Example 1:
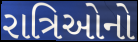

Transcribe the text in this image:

રાત્રિઓનો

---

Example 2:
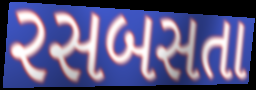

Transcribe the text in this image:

રસબસતા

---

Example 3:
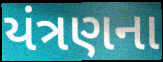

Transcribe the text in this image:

યંત્રણના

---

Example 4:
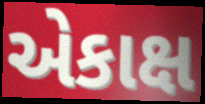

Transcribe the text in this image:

એકાક્ષ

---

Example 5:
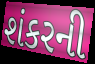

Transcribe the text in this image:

શંકરની